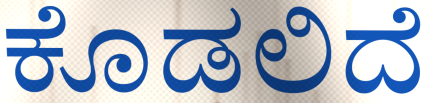
ಕೊಡಲಿದೆ